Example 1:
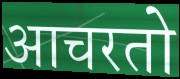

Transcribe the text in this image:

आचरतो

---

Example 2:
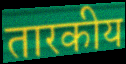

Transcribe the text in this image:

तारकीय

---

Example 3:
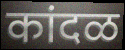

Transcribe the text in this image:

कांदळ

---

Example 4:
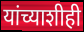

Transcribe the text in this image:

यांच्याशीही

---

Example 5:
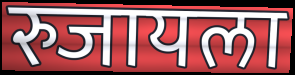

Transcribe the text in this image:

रुजायला